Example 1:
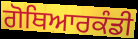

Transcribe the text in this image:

ਗੋਥਿਆਰਕੰਡੀ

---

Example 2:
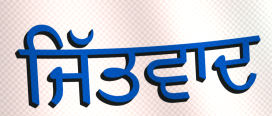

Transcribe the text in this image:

ਜਿੱਤਵਾਦ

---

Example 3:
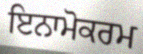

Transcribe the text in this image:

ਇਨਾਮੋਕਰਮ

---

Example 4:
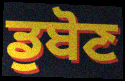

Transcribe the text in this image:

ਡੁਬੋਣ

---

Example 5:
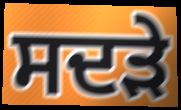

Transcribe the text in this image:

ਸਦੜੇ